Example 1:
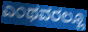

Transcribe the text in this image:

ಎಂಥವರಲ್ಲೂ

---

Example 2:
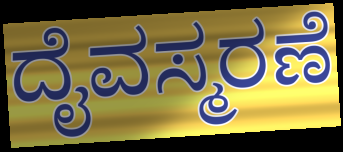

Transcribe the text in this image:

ದೈವಸ್ಮರಣೆ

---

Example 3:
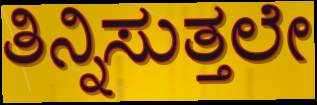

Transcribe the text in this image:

ತಿನ್ನಿಸುತ್ತಲೇ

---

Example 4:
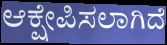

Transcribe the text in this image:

ಆಕ್ಷೇಪಿಸಲಾಗಿದೆ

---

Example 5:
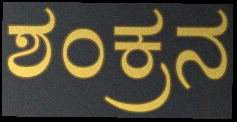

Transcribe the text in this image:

ಶಂಕ್ರನ